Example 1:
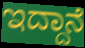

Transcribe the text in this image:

ಇದ್ದಾನೆ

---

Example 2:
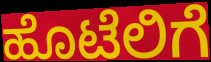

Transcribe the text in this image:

ಹೊಟೆಲಿಗೆ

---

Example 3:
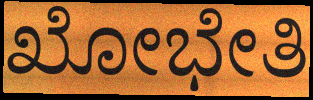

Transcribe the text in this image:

ಖೋಭೇತಿ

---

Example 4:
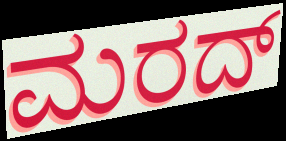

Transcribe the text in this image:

ಮರದ್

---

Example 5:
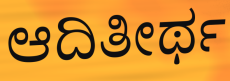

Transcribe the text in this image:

ಆದಿತೀರ್ಥ